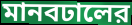
মানবঢালের